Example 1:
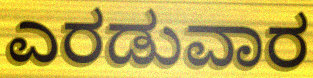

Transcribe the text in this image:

ಎರಡುವಾರ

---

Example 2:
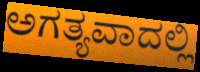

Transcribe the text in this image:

ಅಗತ್ಯವಾದಲ್ಲಿ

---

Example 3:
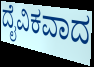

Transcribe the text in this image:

ದೈವಿಕವಾದ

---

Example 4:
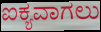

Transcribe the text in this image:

ಐಕ್ಯವಾಗಲು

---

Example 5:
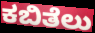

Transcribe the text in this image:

ಕಬಿತೆಲು